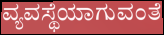
ವ್ಯವಸ್ಥೆಯಾಗುವಂತೆ